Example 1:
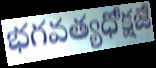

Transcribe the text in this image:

భగవత్యధోక్షజే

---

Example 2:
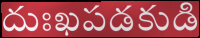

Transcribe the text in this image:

దుఃఖపడకుడి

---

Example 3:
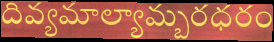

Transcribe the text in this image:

దివ్యమాల్యామ్బరధరం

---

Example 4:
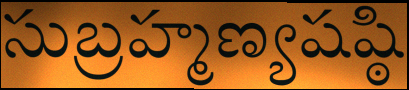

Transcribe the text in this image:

సుబ్రహ్మణ్యషష్ఠి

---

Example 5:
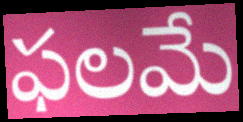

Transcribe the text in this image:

ఫలమే